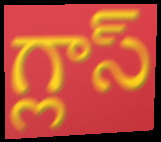
గ్లాస్